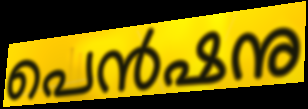
പെൻഷനു